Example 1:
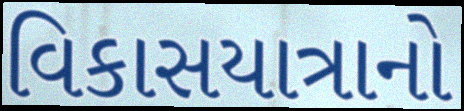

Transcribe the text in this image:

વિકાસયાત્રાનો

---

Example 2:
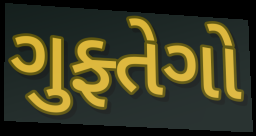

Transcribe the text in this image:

ગુફ્તેગો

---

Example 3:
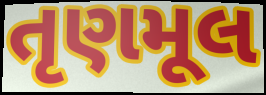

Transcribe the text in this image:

તૃણમૂલ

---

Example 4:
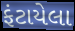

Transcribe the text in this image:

ફંટાયેલા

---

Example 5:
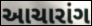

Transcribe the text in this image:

આચારાંગ